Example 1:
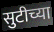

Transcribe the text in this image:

सुटीच्या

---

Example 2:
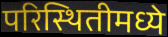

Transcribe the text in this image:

परिस्थितीमध्ये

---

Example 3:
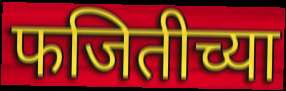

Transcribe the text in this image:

फजितीच्या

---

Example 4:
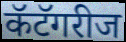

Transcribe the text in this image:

कॅटॅगरीज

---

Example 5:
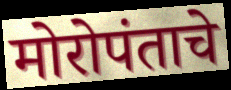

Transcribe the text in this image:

मोरोपंताचे